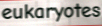
eukaryotes